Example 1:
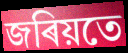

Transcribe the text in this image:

জৰিয়তে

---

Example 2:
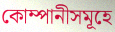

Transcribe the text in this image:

কোম্পানীসমূহে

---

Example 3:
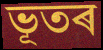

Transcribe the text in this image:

ভূতৰ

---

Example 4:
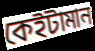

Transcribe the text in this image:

কেইটামান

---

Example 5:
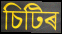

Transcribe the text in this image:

চিটিৰ